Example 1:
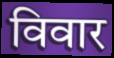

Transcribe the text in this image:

विवार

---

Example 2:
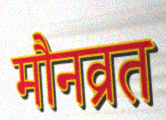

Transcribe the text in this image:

मौनव्रत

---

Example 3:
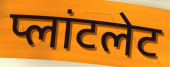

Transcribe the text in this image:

प्लांटलेट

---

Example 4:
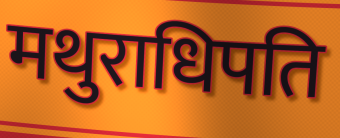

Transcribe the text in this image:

मथुराधिपति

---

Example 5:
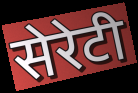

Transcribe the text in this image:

सेरेटी